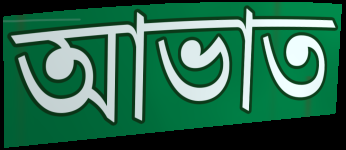
আভাত